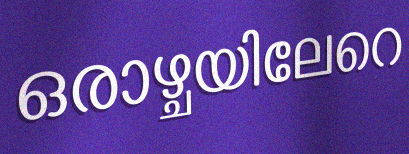
ഒരാഴ്ചയിലേറെ